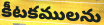
కీటకములను